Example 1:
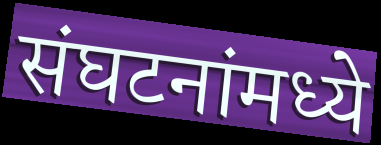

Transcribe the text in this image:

संघटनांमध्ये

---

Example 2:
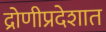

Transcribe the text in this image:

द्रोणीप्रदेशात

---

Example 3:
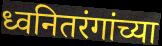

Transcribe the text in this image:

ध्वनितरंगांच्या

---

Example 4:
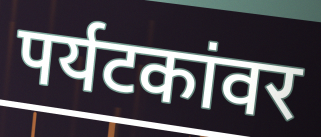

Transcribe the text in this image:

पर्यटकांवर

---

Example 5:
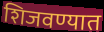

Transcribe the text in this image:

शिजवण्यात